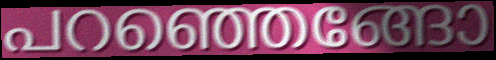
പറഞ്ഞെങ്ങോ